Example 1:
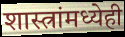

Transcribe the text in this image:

शास्त्रांमध्येही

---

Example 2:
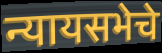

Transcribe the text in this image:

न्यायसभेचे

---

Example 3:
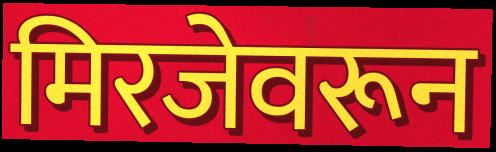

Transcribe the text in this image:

मिरजेवरून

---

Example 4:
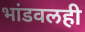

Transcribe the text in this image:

भांडवलही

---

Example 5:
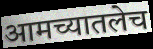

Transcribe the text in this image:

आमच्यातलेच